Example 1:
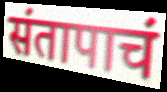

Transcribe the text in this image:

संतापाचं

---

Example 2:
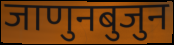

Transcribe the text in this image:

जाणुनबुजुन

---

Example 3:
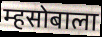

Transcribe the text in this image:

म्हसोबाला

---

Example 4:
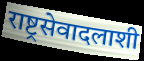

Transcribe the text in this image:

राष्ट्रसेवादलाशी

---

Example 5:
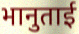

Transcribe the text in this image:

भानुताई